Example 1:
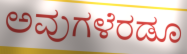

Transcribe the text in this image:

ಅವುಗಳೆರಡೂ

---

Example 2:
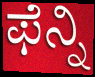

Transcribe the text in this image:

ಫೆನ್ನಿ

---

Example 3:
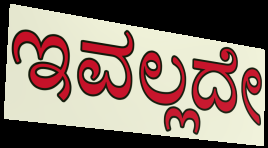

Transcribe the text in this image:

ಇವಲ್ಲದೇ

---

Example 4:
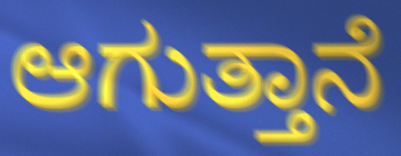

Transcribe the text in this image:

ಆಗುತ್ತಾನೆ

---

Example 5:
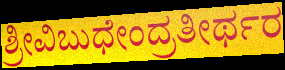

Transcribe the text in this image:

ಶ್ರೀವಿಬುಧೇಂದ್ರತೀರ್ಥರ